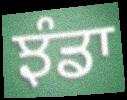
ਝੰਡਾ